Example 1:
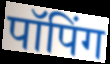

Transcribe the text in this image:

पॉपिंग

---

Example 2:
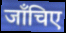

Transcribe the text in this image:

जाँचिए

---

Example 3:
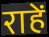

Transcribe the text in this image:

राहें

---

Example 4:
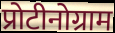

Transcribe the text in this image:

प्रोटीनोग्राम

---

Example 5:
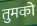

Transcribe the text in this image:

तुमको